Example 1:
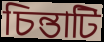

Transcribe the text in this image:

চিন্তাটি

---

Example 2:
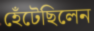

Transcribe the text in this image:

হেঁটেছিলেন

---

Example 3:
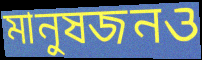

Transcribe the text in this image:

মানুষজনও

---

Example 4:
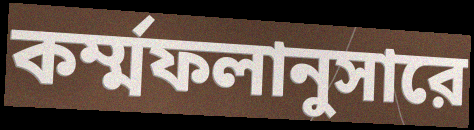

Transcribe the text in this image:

কর্ম্মফলানুসারে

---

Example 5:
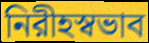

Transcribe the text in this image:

নিরীহস্বভাব